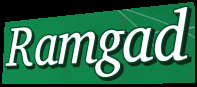
Ramgad